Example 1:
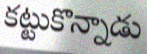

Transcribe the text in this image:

కట్టుకొన్నాడు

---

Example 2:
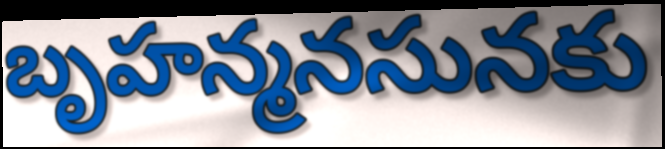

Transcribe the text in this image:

బృహన్మనసునకు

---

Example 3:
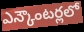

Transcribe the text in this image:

ఎన్కౌంటర్లలో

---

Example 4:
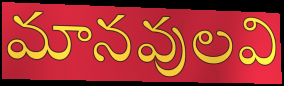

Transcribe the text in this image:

మానవులవి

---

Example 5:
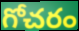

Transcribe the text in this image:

గోచరం